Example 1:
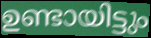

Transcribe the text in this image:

ഉണ്ടായിട്ടും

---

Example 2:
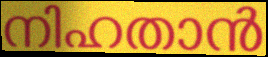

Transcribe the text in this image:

നിഹതാൻ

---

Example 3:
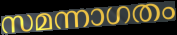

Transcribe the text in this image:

സമന്നാഗതം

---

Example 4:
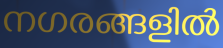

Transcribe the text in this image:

നഗരങ്ങളിൽ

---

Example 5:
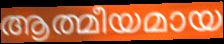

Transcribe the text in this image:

ആത്മീയമായ